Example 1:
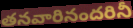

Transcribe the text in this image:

తనవారినందరినీ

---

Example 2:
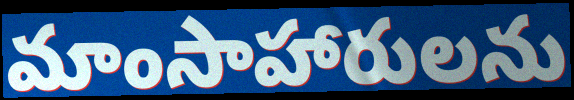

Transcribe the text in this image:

మాంసాహారులను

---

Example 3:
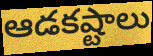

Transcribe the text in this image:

ఆడకష్టాలు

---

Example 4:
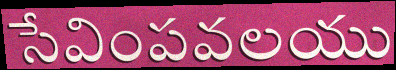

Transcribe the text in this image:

సేవింపవలయు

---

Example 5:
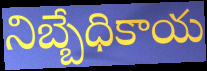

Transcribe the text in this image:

నిబ్బేధికాయ